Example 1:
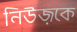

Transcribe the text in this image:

নিউজ়কে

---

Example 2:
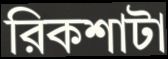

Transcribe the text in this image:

রিকশাটা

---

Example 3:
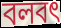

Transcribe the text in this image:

বলবৎ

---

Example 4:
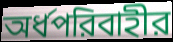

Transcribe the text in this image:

অর্ধপরিবাহীর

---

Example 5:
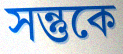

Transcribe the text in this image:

সন্তুকে